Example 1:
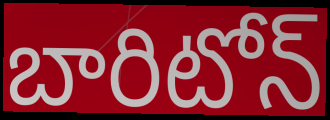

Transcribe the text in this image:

బారిటోన్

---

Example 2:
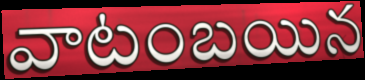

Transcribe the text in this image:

వాటంబయిన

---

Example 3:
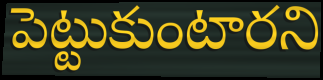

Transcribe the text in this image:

పెట్టుకుంటారని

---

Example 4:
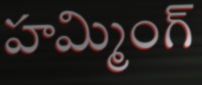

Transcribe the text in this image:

హమ్మింగ్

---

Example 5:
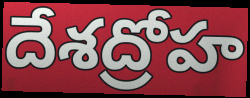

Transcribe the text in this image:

దేశద్రోహ